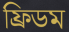
ফ্ৰিডম